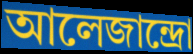
আলেজান্দ্রো